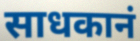
साधकानं